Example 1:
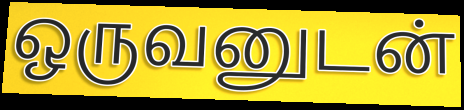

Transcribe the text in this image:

ஒருவனுடன்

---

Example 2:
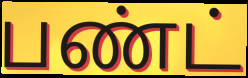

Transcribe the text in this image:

பண்ட்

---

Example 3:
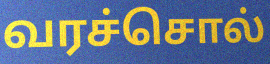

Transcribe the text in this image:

வரச்சொல்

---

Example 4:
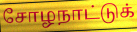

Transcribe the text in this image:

சோழநாட்டுக்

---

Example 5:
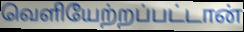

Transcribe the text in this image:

வெளியேற்றப்பட்டான்